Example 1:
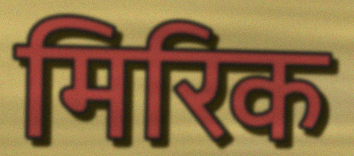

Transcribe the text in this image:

मिरिक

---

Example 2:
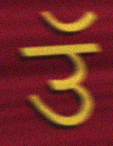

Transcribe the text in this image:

उॅ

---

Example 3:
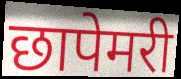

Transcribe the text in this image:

छापेमरी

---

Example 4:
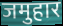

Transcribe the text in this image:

जमुहार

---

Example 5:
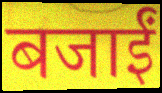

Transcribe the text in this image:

बजाईं